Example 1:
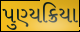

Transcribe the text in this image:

પુણ્યક્રિયા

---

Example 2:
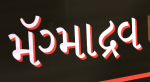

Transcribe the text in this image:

મૅગ્માદ્રવ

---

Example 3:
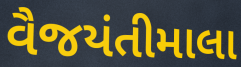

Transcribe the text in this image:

વૈજયંતીમાલા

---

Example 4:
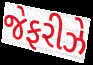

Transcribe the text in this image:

જેફરીઝે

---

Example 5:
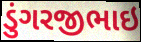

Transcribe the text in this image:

ડુંગરજીભાઇ